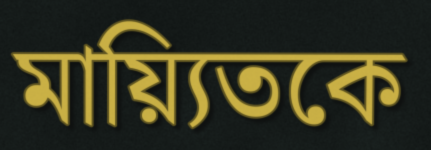
মায়্যিতকে